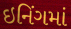
ઇનિંગમાં